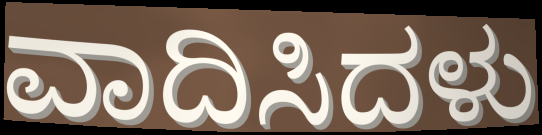
ವಾದಿಸಿದಳು